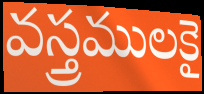
వస్త్రములకై